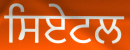
ਸਿਏਟਲ